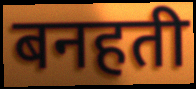
बनहती